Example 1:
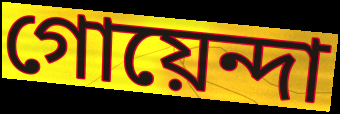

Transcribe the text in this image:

গোয়েন্দা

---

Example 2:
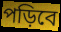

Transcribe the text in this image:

পড়িবে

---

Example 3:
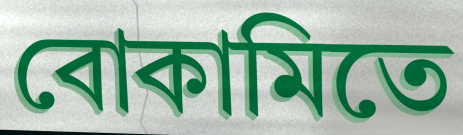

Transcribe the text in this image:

বোকামিতে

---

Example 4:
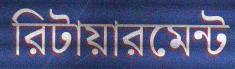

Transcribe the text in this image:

রিটায়ারমেন্ট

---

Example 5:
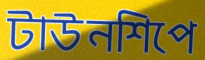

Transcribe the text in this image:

টাউনশিপে